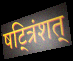
षट्त्रिंशत्